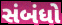
સંબંધો